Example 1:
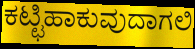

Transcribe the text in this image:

ಕಟ್ಟಿಹಾಕುವುದಾಗಲಿ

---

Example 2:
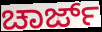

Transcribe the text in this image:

ಚಾರ್ಜ್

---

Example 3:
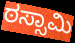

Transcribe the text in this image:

ಠಸ್ಸಾಮಿ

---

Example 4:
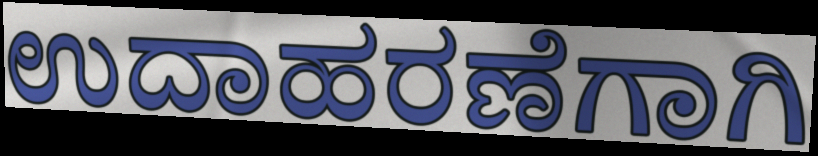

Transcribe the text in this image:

ಉದಾಹರಣೆಗಾಗಿ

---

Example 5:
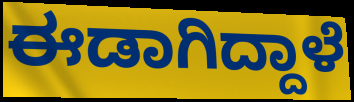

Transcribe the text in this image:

ಈಡಾಗಿದ್ದಾಳೆ